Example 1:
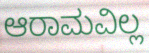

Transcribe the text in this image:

ಆರಾಮವಿಲ್ಲ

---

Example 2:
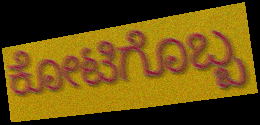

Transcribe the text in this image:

ಕೋಟಿಗೊಬ್ಬ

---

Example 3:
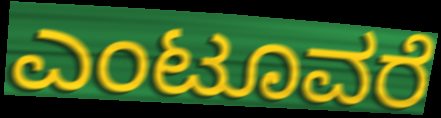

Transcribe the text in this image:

ಎಂಟೂವರೆ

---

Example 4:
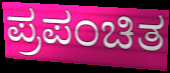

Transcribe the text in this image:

ಪ್ರಪಂಚಿತ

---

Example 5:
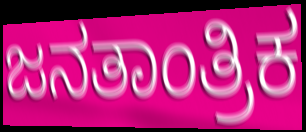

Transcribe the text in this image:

ಜನತಾಂತ್ರಿಕ